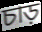
চাড়